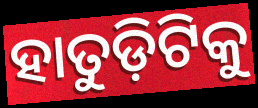
ହାତୁଡ଼ିଟିକୁ